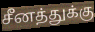
சீனத்துக்கு